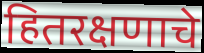
हितरक्षणाचे